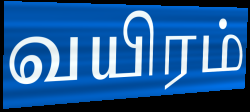
வயிரம்